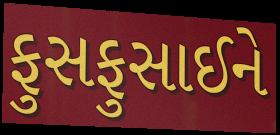
ફુસફુસાઈને